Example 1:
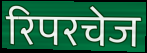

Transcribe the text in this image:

रिपरचेज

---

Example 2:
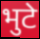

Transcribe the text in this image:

भुटे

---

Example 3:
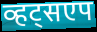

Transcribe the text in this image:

व्हट्सएप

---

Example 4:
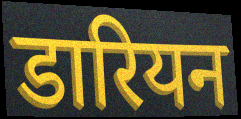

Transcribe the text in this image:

डारियन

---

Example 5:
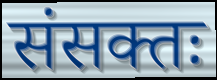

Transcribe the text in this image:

संसक्तः